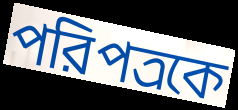
পরিপত্রকে